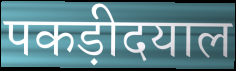
पकड़ीदयाल